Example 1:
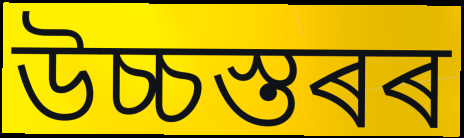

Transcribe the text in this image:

উচ্চস্তৰৰ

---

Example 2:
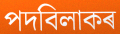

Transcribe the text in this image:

পদবিলাকৰ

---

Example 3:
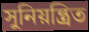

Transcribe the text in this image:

সুনিয়ন্ত্ৰিত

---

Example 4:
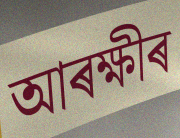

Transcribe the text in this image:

আৰক্ষীৰ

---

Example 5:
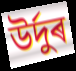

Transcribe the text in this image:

উৰ্দুৰ